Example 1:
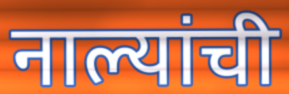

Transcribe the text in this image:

नाल्यांची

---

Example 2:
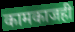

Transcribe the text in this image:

कामकाजही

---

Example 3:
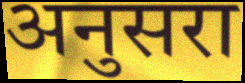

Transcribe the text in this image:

अनुसरा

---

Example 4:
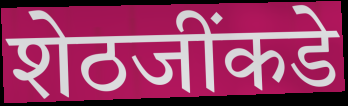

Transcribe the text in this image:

शेठजींकडे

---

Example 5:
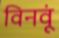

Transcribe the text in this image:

विनवूं